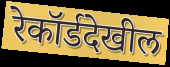
रेकॉर्डदेखील